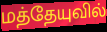
மத்தேயுவில்